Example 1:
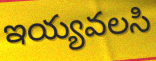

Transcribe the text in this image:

ఇయ్యవలసి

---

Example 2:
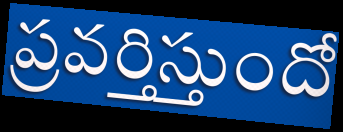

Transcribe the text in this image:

ప్రవర్తిస్తుందో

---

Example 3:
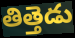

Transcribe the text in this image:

తిత్తెడు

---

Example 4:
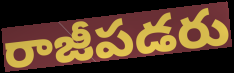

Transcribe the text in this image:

రాజీపడరు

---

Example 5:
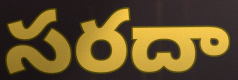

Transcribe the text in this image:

సరదా